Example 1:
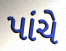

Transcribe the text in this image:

પાંચે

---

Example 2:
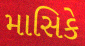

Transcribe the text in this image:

માસિકે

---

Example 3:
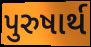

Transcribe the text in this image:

પુરુષાર્થ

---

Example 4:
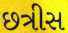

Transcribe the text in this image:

છત્રીસ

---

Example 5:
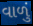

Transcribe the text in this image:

વાળું